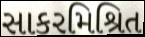
સાકરમિશ્રિત